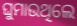
ଘୁମାଉଥିଲେ